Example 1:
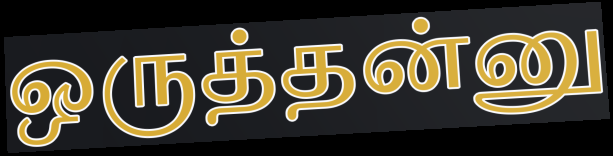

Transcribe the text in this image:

ஒருத்தன்னு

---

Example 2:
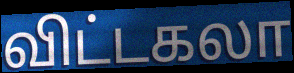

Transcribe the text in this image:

விட்டகலா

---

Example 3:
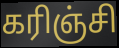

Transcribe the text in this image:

கரிஞ்சி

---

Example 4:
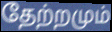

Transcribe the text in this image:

தேற்றமும்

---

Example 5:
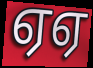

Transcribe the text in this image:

ஏஏ